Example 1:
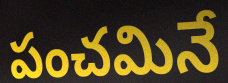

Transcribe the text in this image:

పంచమినే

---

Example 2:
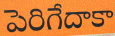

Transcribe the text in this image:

పెరిగేదాకా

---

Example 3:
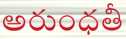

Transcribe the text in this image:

అరుంధతీ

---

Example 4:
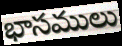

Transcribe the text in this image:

భాసములు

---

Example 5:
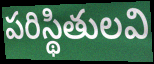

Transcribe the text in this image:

పరిస్థితులవి